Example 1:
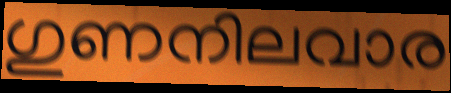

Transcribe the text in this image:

ഗുണനിലവാര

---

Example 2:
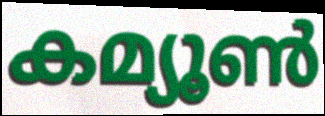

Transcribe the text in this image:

കമ്യൂൺ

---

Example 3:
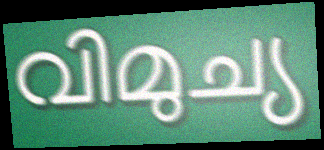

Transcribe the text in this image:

വിമുച്യ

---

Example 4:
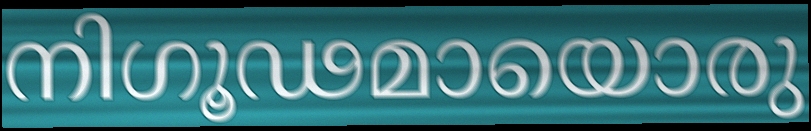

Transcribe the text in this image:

നിഗൂഢമായൊരു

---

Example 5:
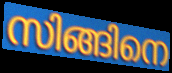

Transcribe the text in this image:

സിങ്ങിനെ